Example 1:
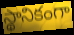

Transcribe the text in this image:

స్థానికంగా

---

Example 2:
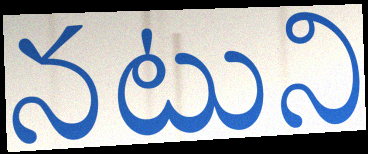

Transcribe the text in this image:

నటుని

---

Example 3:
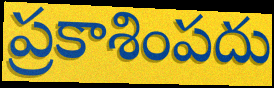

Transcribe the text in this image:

ప్రకాశింపదు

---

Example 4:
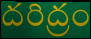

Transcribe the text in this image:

దరిద్రం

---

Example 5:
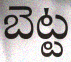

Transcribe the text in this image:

బెట్ట